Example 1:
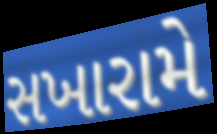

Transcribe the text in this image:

સખારામે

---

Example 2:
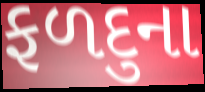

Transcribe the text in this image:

ફળદુના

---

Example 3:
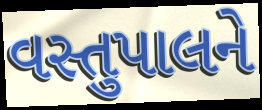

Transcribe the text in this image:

વસ્તુપાલને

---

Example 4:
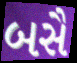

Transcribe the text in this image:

બસૈ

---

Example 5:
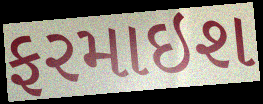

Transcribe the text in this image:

ફરમાઇશ